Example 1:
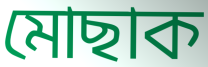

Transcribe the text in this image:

মোছাক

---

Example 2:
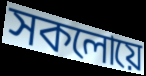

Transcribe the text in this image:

সকলোয়ে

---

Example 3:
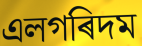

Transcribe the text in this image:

এলগৰিদম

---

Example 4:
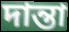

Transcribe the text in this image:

দান্তা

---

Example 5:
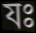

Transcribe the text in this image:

যঃ